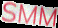
SMM